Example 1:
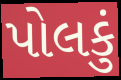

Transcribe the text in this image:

પોલકું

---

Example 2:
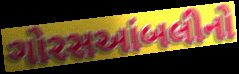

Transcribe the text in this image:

ગોરસઆંબલીનો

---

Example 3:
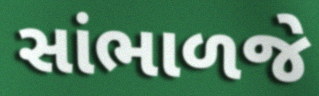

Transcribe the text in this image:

સાંભાળજે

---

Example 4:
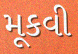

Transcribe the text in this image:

મૂકવી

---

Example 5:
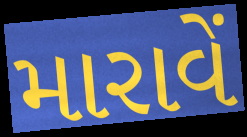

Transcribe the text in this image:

મારાવેં